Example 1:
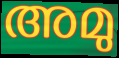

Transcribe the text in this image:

അമു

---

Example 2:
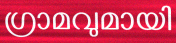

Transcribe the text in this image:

ഗ്രാമവുമായി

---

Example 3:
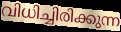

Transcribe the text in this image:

വിധിച്ചിരിക്കുന്ന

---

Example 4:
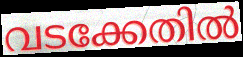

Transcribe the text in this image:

വടക്കേതിൽ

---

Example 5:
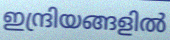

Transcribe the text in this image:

ഇന്ദ്രിയങ്ങളിൽ